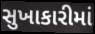
સુખાકારીમાં